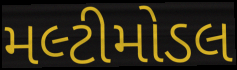
મલ્ટીમોડલ